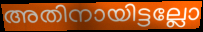
അതിനായിട്ടല്ലോ